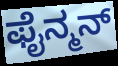
ಫೈನ್ಮನ್